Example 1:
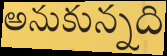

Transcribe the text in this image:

అనుకున్నది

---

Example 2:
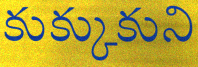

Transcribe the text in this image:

కుక్కుకుని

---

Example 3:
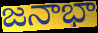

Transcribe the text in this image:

జనాభా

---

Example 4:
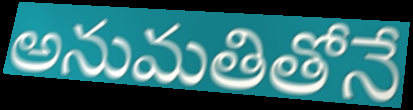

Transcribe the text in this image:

అనుమతితోనే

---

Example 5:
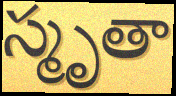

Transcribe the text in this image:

స్మృతా